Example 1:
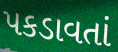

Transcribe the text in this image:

પકડાવતાં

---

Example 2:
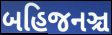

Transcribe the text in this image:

બહિજનઞ્ચ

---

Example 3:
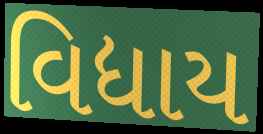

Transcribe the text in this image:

વિદ્યાય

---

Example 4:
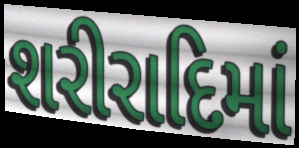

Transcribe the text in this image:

શરીરાદિમાં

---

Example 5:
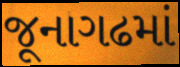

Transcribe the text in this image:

જૂનાગઢમાં